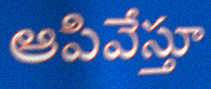
ఆపివేస్తూ